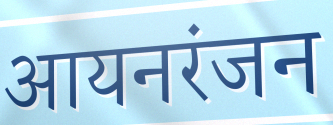
आयनरंजन